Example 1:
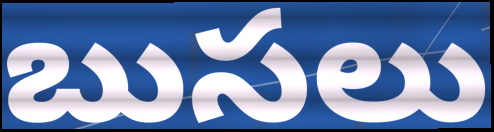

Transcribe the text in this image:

బుసలు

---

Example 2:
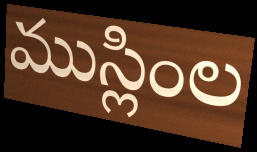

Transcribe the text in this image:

ముస్లింల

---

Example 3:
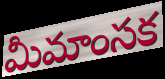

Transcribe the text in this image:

మీమాంసక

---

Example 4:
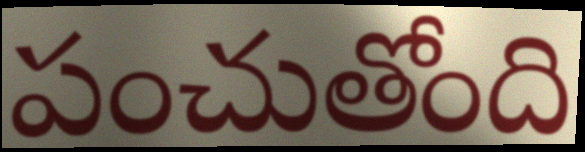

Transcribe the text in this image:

పంచుతోంది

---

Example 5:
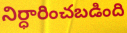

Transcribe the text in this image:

నిర్ధారించబడింది